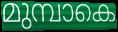
മുമ്പാകെ